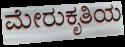
ಮೇರುಕೃತಿಯ